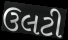
ઉલટી